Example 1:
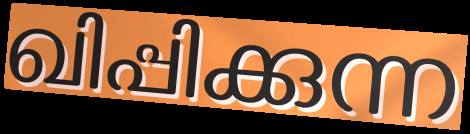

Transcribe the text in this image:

ഖിപ്പിക്കുന്ന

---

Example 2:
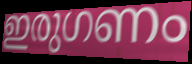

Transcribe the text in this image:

ഇരുഗണം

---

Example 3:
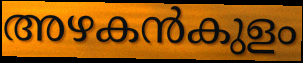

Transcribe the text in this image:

അഴകൻകുളം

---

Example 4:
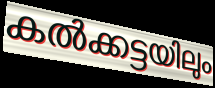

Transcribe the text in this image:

കൽക്കട്ടയിലും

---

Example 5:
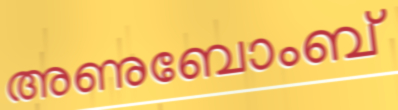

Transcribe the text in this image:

അണുബോംബ്